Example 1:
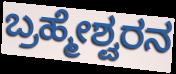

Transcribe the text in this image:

ಬ್ರಹ್ಮೇಶ್ವರನ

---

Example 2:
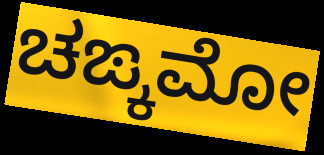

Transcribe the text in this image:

ಚಙ್ಕಮೋ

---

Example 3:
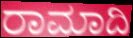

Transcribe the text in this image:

ರಾಮಾದಿ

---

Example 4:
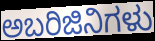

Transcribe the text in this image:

ಅಬರಿಜಿನಿಗಳು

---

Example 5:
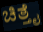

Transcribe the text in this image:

ಚಿತ್ತೈ